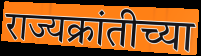
राज्यक्रांतीच्या